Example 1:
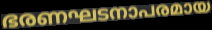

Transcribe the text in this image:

ഭരണഘടനാപരമായ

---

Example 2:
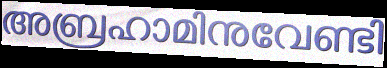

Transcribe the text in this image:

അബ്രഹാമിനുവേണ്ടി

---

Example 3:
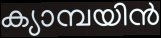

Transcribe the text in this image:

ക്യാമ്പയിൻ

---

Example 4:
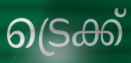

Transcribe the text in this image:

ട്രെക്ക്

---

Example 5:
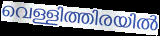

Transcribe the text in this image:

വെള്ളിത്തിരയിൽ